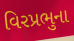
વિરપ્રભુના